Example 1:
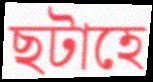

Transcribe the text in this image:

ছটাহে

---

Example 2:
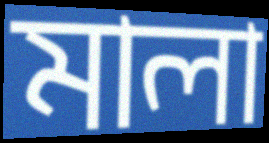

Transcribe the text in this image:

মালা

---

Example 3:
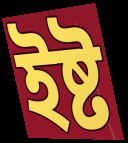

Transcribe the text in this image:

ইষ্ট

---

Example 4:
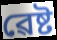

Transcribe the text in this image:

ৱেষ্ট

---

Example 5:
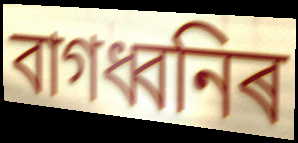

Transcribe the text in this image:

বাগধ্বনিৰ